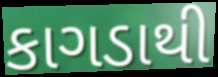
કાગડાથી